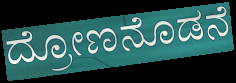
ದ್ರೋಣನೊಡನೆ